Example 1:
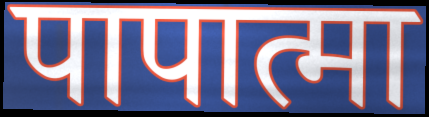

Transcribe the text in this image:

पापात्मा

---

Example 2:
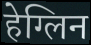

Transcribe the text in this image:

हेग्लिन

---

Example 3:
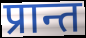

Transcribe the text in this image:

प्रान्त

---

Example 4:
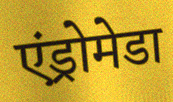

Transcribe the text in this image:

एंड्रोमेडा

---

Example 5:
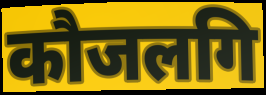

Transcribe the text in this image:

कौजलगि